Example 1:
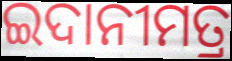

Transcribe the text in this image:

ଇଦାନୀମତ୍ର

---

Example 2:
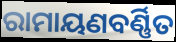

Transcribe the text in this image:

ରାମାୟଣବର୍ଣ୍ଣିତ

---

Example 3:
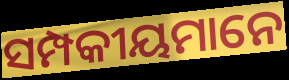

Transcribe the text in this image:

ସମ୍ପକୀୟମାନେ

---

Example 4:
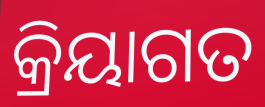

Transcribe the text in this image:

କ୍ରିୟାଗତ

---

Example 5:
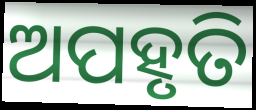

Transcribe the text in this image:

ଅପହୃତି